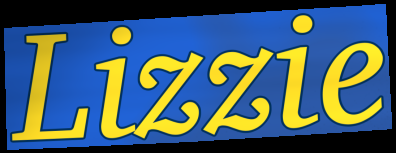
Lizzie